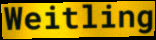
Weitling